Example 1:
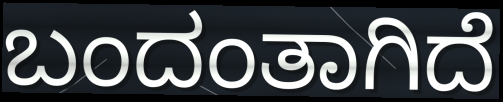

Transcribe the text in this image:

ಬಂದಂತಾಗಿದೆ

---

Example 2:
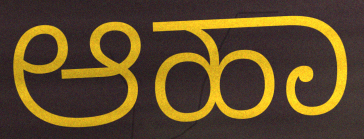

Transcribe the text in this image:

ಆಹಾ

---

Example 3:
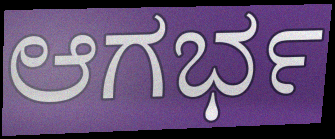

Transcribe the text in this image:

ಆಗರ್ಭ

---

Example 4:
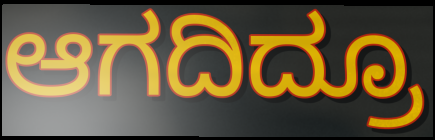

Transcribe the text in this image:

ಆಗದಿದ್ರೂ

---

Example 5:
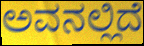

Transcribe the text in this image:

ಅವನಲ್ಲಿದೆ